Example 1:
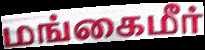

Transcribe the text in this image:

மங்கைமீர்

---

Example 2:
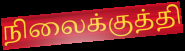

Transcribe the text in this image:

நிலைக்குத்தி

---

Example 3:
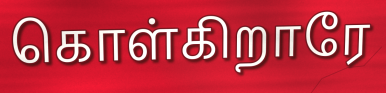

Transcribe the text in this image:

கொள்கிறாரே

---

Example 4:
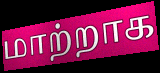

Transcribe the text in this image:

மாற்றாக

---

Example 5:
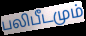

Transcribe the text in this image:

பலிபீடமும்